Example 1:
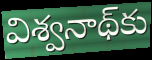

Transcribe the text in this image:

విశ్వనాథ్‌కు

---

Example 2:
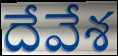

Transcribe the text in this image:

దేవేశ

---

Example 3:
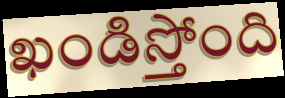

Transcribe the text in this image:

ఖండిస్తోంది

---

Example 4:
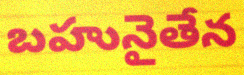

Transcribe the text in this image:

బహునైతేన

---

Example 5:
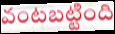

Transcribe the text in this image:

వంటబట్టింది